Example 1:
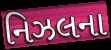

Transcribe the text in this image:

નિઝલના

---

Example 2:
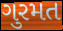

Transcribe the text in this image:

ગુરમત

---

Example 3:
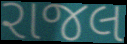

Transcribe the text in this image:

રાજલ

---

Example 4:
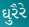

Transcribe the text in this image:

ઘુરૈરે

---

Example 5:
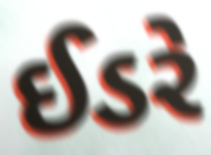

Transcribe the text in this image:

ઈડરે